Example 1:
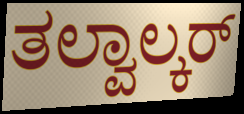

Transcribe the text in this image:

ತಲ್ವಾಲ್ಕರ್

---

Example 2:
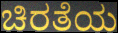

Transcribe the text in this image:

ಚಿರತೆಯ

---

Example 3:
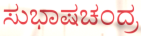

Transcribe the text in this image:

ಸುಭಾಷಚಂದ್ರ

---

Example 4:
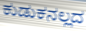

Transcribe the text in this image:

ಕುಡುಕನಲ್ಲದ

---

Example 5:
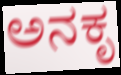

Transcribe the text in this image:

ಅನಕೃ